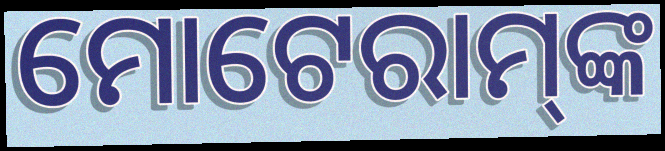
ମୋଟେରାମ୍‌ଙ୍କ